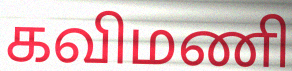
கவிமணி